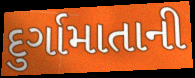
દુર્ગામાતાની